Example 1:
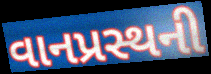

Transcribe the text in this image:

વાનપ્રસ્થની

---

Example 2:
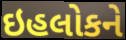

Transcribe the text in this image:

ઇહલોકને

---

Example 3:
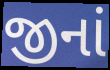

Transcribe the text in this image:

જીનાં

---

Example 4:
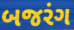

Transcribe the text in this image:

બજરંગ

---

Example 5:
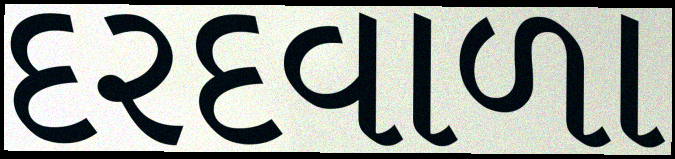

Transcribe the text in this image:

દરદવાળા